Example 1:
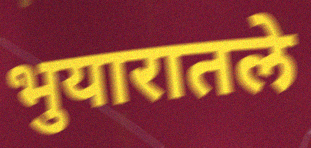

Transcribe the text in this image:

भुयारातले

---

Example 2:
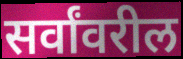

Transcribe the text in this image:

सर्वांवरील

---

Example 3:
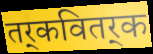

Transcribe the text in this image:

तर्कवितर्क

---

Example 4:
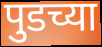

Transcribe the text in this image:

पुडच्या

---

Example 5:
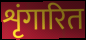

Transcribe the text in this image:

शृंगारित